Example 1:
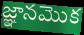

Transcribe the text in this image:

జ్ఞానమొక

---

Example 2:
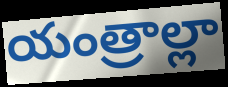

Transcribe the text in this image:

యంత్రాల్లా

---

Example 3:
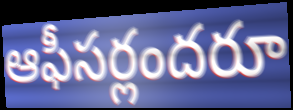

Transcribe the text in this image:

ఆఫీసర్లందరూ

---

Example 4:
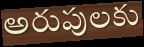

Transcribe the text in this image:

అరుపులకు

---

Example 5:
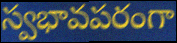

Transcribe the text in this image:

స్వభావపరంగా